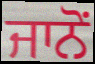
ਜਾਨੋਂ